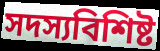
সদস্যবিশিষ্ট